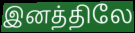
இனத்திலே